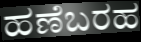
ಹಣೆಬರಹ